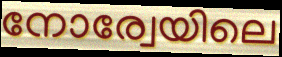
നോര്വേയിലെ